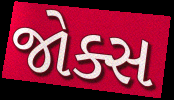
જોક્સ